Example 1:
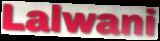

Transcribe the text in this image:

Lalwani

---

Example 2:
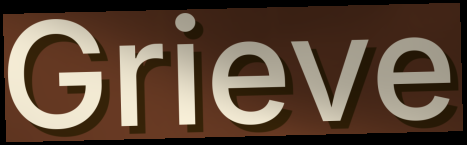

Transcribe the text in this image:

Grieve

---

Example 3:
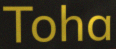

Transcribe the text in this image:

Toha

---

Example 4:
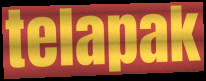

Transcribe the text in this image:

telapak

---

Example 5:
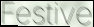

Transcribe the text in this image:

Festive